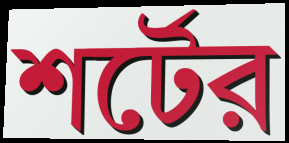
শর্টের